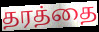
தரத்தை